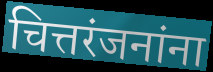
चित्तरंजनांना